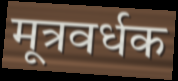
मूत्रवर्धक